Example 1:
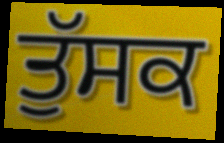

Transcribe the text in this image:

ਤੁੱਸਕ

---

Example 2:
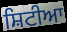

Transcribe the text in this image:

ਸ਼ਿਟੀਆ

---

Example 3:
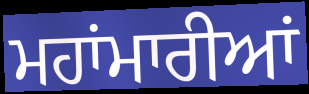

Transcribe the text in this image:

ਮਹਾਂਮਾਰੀਆਂ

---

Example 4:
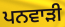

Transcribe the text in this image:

ਪਨਵਾੜੀ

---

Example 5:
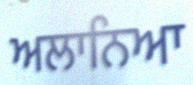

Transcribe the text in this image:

ਅਲਾਨਿਆ